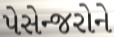
પેસેન્જરોને